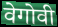
वेगोवी